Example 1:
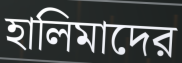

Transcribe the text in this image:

হালিমাদের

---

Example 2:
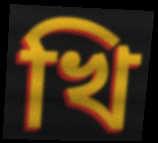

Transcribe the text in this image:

খি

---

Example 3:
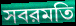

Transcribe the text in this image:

সবরমতি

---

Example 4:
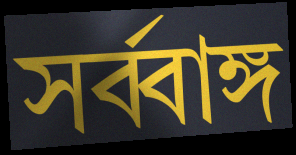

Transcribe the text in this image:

সর্ব্বাঙ্গ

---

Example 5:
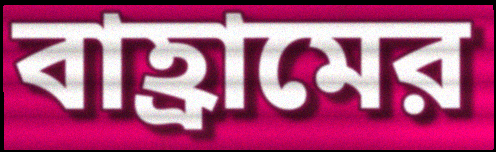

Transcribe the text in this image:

বাহ্রামের